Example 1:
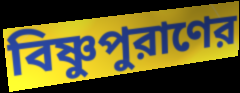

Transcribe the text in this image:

বিষ্ণুপুরাণের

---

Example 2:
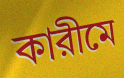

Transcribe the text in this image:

কারীমে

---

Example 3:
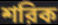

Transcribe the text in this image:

শরিক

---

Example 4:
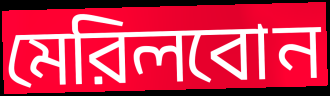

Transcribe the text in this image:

মেরিলবোন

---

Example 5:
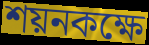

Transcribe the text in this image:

শয়নকক্ষে